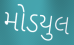
મોડયુલ